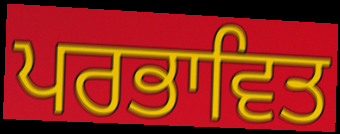
ਪਰਭਾਵਿਤ